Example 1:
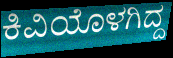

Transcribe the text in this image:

ಕಿವಿಯೊಳಗಿದ್ದ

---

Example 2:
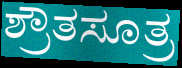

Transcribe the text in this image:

ಶ್ರೌತಸೂತ್ರ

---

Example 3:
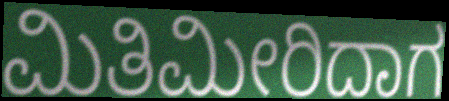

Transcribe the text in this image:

ಮಿತಿಮೀರಿದಾಗ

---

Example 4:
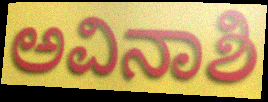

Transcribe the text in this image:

ಅವಿನಾಶಿ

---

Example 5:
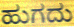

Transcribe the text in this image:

ಹುಗದು